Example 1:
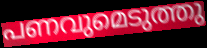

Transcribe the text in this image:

പണവുമെടുത്തു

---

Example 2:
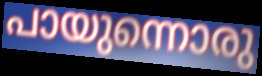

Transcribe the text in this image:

പായുന്നൊരു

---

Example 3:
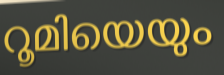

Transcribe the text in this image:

റൂമിയെയും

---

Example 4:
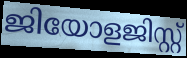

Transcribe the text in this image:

ജിയോളജിസ്റ്റ്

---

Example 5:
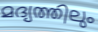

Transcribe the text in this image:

മദ്യത്തിലും